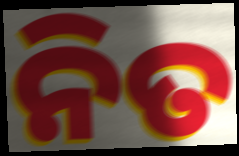
ନିତ